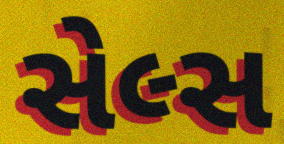
સેલ્સ